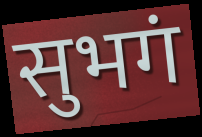
सुभगं